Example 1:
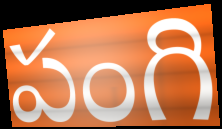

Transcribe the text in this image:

పంగి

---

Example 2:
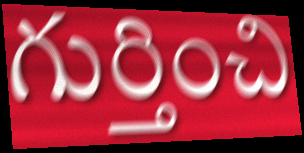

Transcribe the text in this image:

గుర్తించి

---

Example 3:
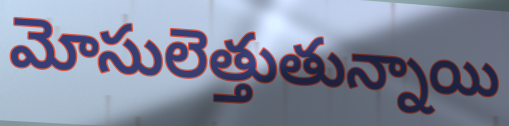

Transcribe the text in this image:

మోసులెత్తుతున్నాయి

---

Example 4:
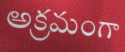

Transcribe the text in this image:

అక్రమంగా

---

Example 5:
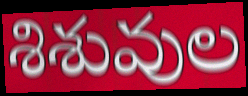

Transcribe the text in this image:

శిశువుల